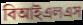
বিআইএলএস